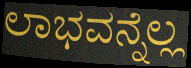
ಲಾಭವನ್ನೆಲ್ಲ